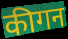
कीगन